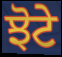
ਝੋਟੇ